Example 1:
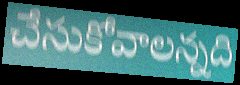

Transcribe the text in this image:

చేసుకోవాలన్నది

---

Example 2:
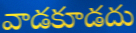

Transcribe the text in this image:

వాడకూడదు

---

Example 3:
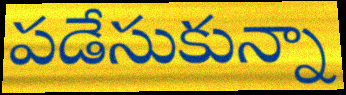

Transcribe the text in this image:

పడేసుకున్నా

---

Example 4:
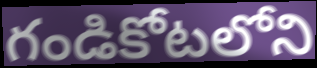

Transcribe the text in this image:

గండికోటలోని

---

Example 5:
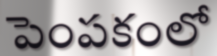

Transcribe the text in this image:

పెంపకంలో